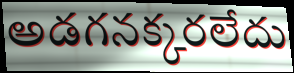
అడగనక్కరలేదు